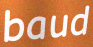
baud